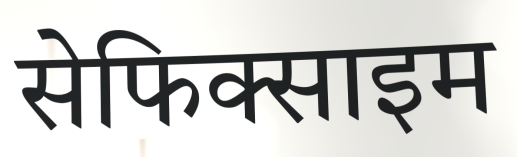
सेफिक्साइम